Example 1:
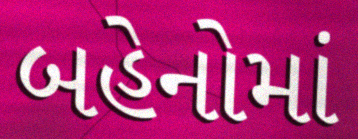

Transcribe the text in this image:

બહેનોમાં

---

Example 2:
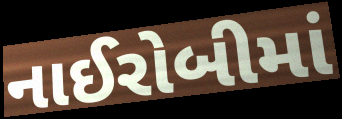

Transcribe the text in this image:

નાઈરોબીમાં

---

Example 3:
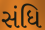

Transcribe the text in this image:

સંધિ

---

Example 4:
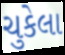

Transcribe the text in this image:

ચુકેલા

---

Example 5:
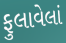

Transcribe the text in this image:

ફુલાવેલાં